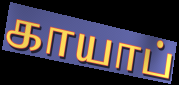
காயாப்